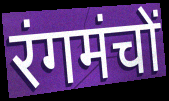
रंगमंचों